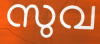
സുവ